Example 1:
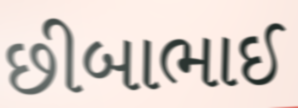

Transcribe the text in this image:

છીબાભાઈ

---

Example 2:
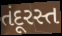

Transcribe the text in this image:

તંદૂરસ્ત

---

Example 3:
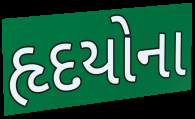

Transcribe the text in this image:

હૃદયોના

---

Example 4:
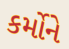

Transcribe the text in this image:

કર્મોને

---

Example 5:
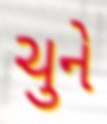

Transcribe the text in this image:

ચુને